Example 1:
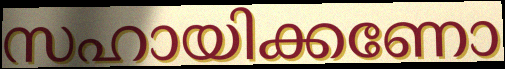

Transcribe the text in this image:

സഹായിക്കണോ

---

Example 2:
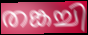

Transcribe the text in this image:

തങ്കച്ചി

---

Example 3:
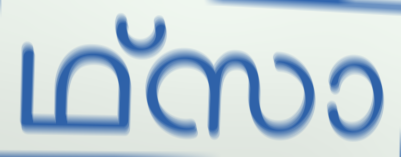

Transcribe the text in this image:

ഥ്സാ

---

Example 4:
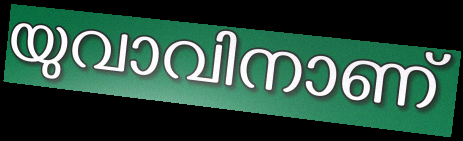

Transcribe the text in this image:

യുവാവിനാണ്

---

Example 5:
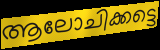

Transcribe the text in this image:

ആലോചിക്കട്ടെ